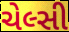
ચેલ્સી